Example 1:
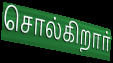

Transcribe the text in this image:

சொல்கிறார்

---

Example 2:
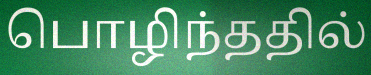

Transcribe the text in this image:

பொழிந்ததில்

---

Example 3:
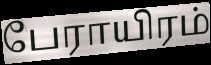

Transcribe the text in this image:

பேராயிரம்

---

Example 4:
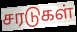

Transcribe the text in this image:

சரடுகள்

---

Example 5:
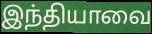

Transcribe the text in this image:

இந்தியாவை